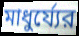
মাধুর্য্যের